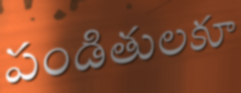
పండితులకూ